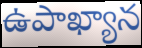
ఉపాఖ్యాన